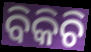
ବିକିଚି